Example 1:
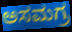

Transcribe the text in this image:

ಅಸಮಗ್ರ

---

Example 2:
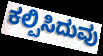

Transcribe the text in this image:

ಕಲ್ಪಿಸಿದುವು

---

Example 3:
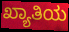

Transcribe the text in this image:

ಖ್ಯಾತಿಯ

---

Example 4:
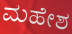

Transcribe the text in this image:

ಮಹೇಶ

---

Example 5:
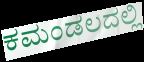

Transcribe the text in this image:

ಕಮಂಡಲದಲ್ಲಿ